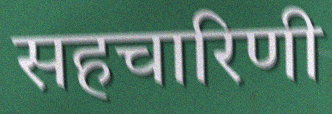
सहचारिणी